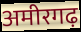
अमीरगढ़